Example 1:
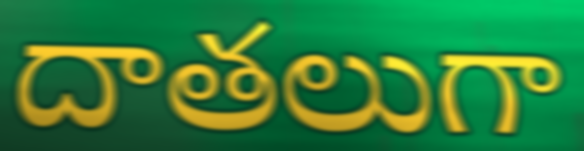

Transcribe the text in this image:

దాతలుగా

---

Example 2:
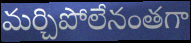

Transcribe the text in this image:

మర్చిపోలేనంతగా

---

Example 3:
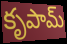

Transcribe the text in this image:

కృపామ్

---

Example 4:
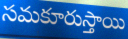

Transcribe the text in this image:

సమకూరుస్తాయి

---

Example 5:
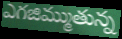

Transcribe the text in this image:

ఎగజిమ్ముతున్న